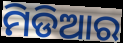
ମିଡିଆର